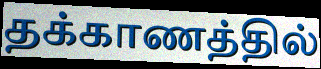
தக்காணத்தில்